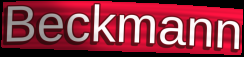
Beckmann